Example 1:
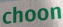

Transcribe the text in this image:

choon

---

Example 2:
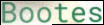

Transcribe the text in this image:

Bootes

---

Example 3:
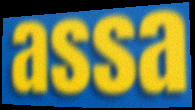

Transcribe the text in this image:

assa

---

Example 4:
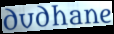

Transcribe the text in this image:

dudhane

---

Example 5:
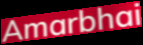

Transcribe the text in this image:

Amarbhai